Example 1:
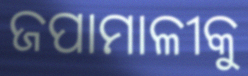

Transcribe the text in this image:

ଜପାମାଳୀକୁ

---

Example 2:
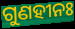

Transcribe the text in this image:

ଗୁଣହୀନଃ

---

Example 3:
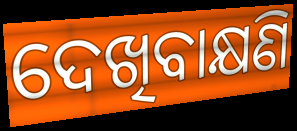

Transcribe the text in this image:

ଦେଖିବାକ୍ଷଣି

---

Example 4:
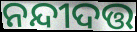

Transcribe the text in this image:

ନନ୍ଦୀଦତ୍ତ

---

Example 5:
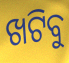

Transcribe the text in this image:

ଖଟିବୁ